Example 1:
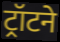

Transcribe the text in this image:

ट्रॉटने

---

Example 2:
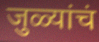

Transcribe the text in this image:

जुळ्यांचं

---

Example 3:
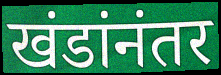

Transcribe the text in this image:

खंडांनंतर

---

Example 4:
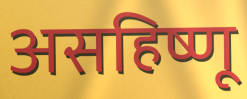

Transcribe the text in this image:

असहिष्णू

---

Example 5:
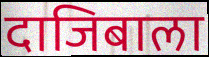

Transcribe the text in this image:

दाजिबाला